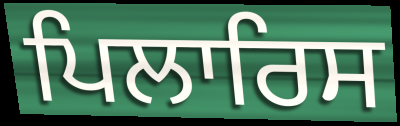
ਪਿਲਾਰਿਸ